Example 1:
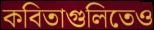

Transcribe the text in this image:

কবিতাগুলিতেও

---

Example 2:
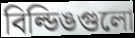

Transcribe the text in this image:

বিল্ডিঙগুলো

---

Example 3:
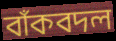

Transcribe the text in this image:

বাঁকবদল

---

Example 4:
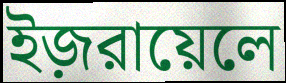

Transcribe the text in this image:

ইজ়রায়েলে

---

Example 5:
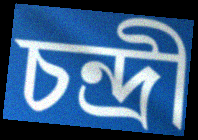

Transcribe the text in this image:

চন্দ্রী